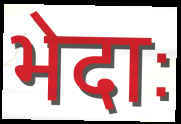
भेदाः